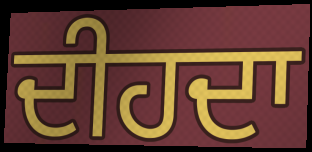
ਦੀਹਦਾ